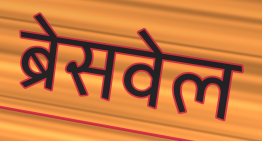
ब्रेसवेल